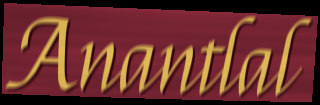
Anantlal